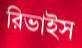
রিভাইস